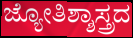
ಜ್ಯೋತಿಶ್ಶಾಸ್ತ್ರದ